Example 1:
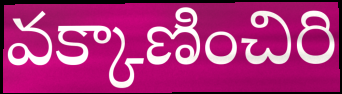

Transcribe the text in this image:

వక్కాణించిరి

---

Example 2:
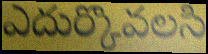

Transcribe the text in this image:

ఎదుర్కొవలసి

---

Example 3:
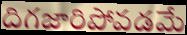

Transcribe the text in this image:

దిగజారిపోవడమే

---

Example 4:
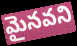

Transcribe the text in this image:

మైనవని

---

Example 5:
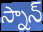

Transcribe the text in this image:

స్నాన్